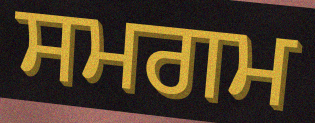
ਸਮਗਮ